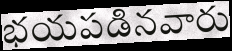
భయపడినవారు